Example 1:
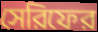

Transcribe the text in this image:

সেরিফের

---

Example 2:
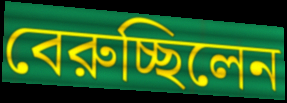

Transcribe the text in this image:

বেরুচ্ছিলেন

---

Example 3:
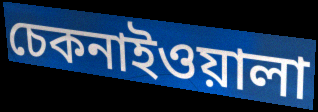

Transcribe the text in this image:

চেকনাইওয়ালা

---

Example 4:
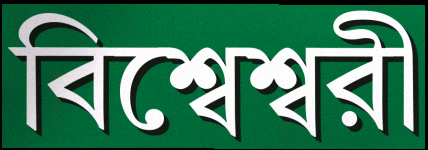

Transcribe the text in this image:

বিশ্বেশ্বরী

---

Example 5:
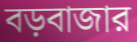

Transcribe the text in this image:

বড়বাজার